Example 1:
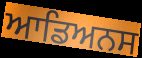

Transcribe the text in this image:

ਆਡਿਅਨਸ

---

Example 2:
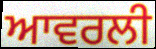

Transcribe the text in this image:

ਆਵਰਲੀ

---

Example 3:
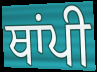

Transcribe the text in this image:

ਥਾਂਪੀ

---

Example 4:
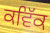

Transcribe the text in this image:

ਕਵਿੱਕ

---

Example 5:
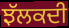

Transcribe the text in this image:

ਝੱਲਕਦੀ